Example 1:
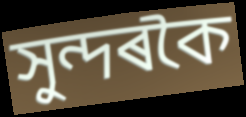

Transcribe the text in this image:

সুন্দৰকৈ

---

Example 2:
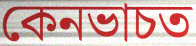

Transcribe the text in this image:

কেনভাচত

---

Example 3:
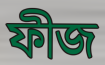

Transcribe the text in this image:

ফীজ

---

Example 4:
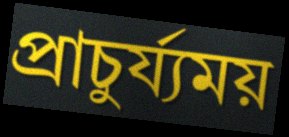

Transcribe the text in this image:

প্ৰাচুৰ্য্যময়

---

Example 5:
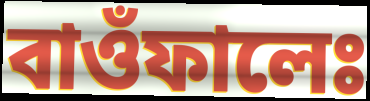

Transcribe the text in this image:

বাওঁফালেঃ